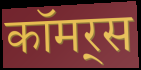
कॉमर्स